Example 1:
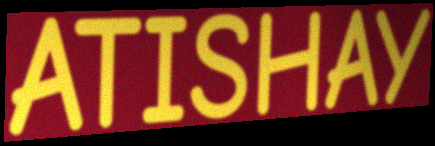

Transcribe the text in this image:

ATISHAY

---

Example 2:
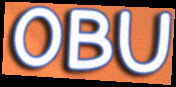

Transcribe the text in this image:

OBU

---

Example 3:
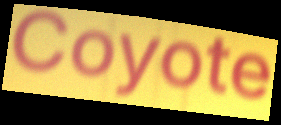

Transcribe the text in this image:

Coyote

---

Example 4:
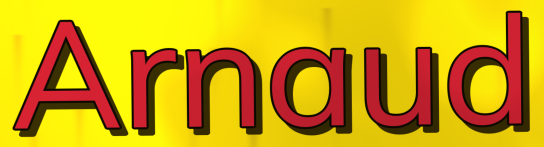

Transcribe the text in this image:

Arnaud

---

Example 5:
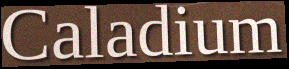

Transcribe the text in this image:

Caladium